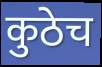
कुठेच